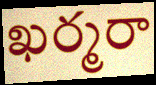
ఖర్మరా